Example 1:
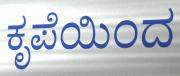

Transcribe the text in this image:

ಕೃಪೆಯಿಂದ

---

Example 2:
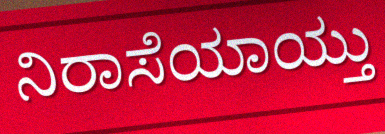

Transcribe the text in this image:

ನಿರಾಸೆಯಾಯ್ತು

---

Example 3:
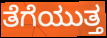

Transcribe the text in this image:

ತೆಗೆಯುತ್ತ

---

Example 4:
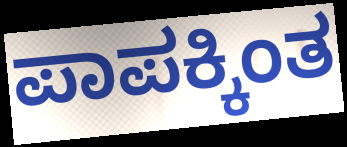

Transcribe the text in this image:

ಪಾಪಕ್ಕಿಂತ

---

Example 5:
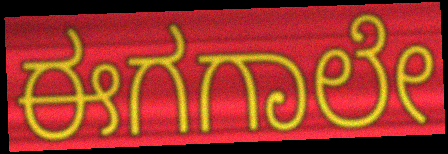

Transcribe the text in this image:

ಈಗಗಾಲೇ